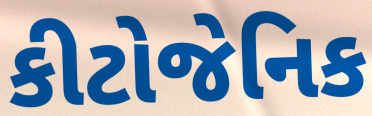
કીટોજેનિક